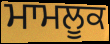
ਮਾਮਲੂਕ